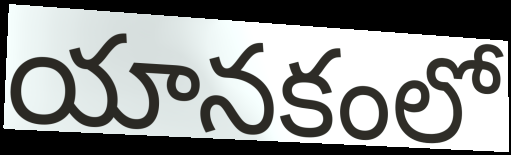
యానకంలో